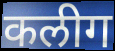
कलीग